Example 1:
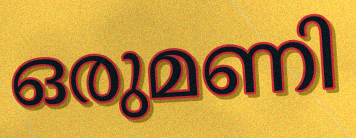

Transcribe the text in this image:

ഒരുമണി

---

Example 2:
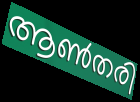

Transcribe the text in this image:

ആൺതരി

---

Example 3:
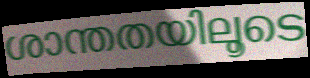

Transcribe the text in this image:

ശാന്തതയിലൂടെ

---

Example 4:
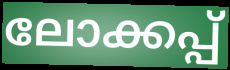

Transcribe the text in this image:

ലോക്കപ്പ്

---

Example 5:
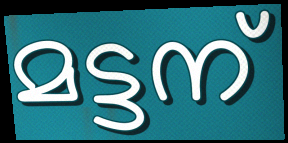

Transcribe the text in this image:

മട്ടന്